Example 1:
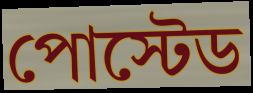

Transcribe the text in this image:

পোস্টেড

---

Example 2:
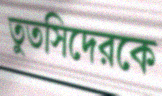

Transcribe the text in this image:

তুতসিদেরকে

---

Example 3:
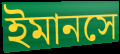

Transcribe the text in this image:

ইমানসে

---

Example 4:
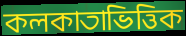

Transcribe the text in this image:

কলকাতাভিত্তিক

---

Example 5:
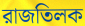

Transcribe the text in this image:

রাজতিলক